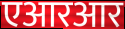
एआरआर